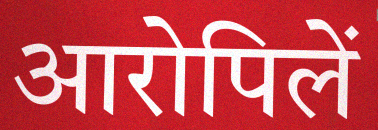
आरोपिलें